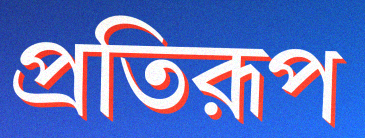
প্রতিরূপ